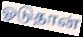
ஓடுதான்